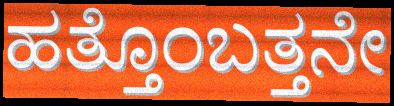
ಹತ್ತೊಂಬತ್ತನೇ